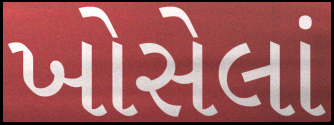
ખોસેલાં